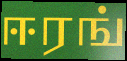
ஈரங்